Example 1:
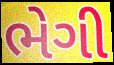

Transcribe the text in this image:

ભેગી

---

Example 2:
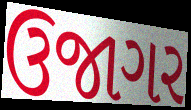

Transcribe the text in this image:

ઉજાગર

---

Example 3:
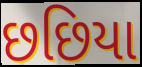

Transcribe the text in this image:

છછિયા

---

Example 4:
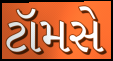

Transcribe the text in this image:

ટૉમસે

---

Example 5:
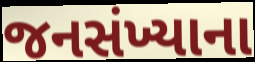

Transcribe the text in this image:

જનસંખ્યાના